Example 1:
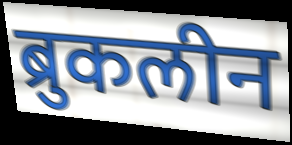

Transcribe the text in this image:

ब्रुकलीन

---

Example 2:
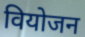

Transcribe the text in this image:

वियोजन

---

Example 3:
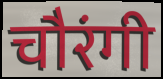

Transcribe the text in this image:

चौरंगी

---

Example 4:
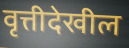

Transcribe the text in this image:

वृत्तीदेखील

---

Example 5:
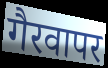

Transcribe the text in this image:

गैरवापर